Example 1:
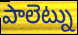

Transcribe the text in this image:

పాలెట్ను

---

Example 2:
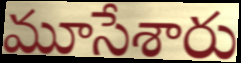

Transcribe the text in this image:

మూసేశారు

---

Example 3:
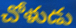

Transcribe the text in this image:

చోళుడు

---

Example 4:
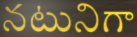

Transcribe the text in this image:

నటునిగా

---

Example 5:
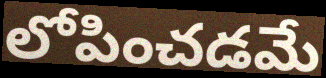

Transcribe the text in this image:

లోపించడమే